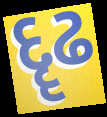
દૄઢ